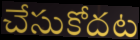
చేసుకోదట